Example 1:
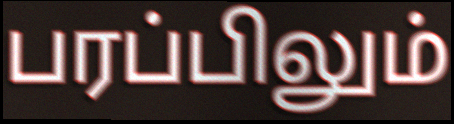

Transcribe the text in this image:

பரப்பிலும்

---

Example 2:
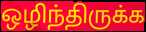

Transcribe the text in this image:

ஒழிந்திருக்க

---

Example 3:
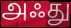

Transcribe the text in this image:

அஃது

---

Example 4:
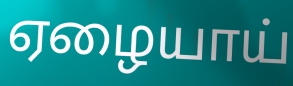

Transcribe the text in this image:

ஏழையாய்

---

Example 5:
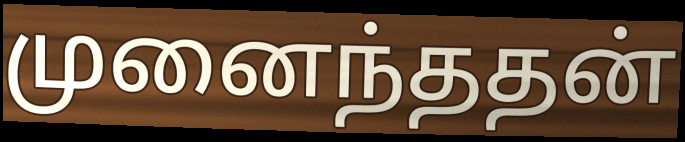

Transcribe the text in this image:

முனைந்ததன்